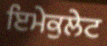
ਇਮੇਕੁਲੇਟ